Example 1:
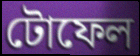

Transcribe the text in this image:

টোফেল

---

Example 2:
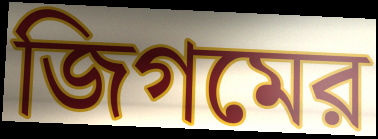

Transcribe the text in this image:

জিগমের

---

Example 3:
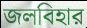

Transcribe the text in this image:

জলবিহার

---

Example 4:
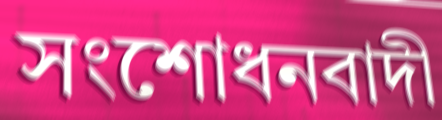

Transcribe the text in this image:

সংশোধনবাদী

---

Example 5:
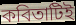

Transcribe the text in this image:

কবিতাটিই